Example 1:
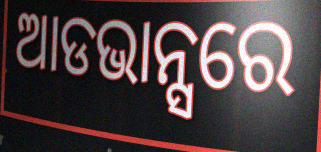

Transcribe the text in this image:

ଆଡଭାନ୍ସରେ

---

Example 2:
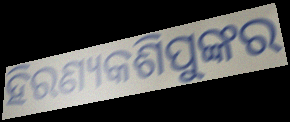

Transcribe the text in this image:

ହିରଣ୍ୟକଶିପୁଙ୍କର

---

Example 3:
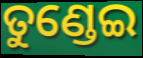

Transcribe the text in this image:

ତୁଣ୍ଡେଇ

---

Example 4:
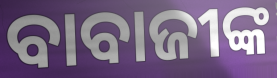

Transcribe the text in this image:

ବାବାଜୀଙ୍କ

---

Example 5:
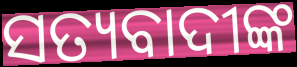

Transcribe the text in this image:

ସତ୍ୟବାଦୀଙ୍କ